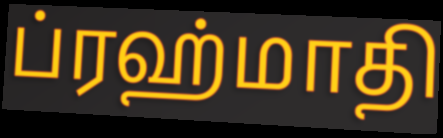
ப்ரஹ்மாதி